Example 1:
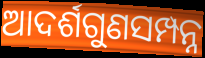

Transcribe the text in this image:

ଆଦର୍ଶଗୁଣସମ୍ପନ୍ନ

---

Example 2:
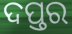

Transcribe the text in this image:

ଦପ୍ତର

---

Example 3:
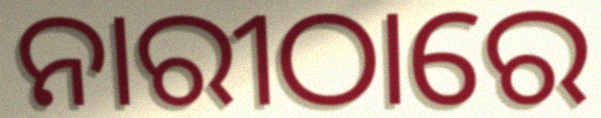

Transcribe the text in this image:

ନାରୀଠାରେ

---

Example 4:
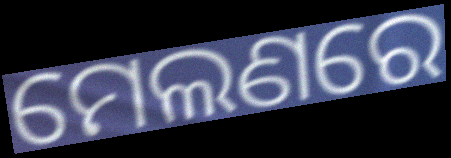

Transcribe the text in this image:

ମେଲଣରେ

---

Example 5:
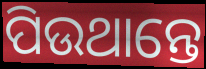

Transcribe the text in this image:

ପିଉଥାନ୍ତେ